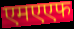
एमएएफ